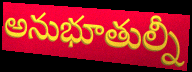
అనుభూతుల్నీ